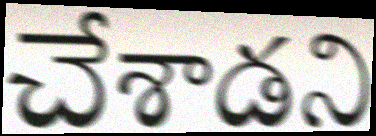
చేశాడని